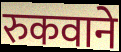
रुकवाने